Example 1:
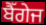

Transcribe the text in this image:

ਬੈੱਗੇਜ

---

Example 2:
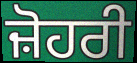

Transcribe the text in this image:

ਜ਼ੋਹਰੀ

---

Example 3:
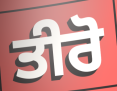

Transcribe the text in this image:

ਤੀਰੋ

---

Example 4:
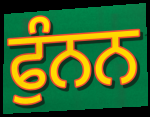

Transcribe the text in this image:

ਫੁੰਨਨ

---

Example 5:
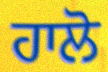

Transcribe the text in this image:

ਹਾਲੋ